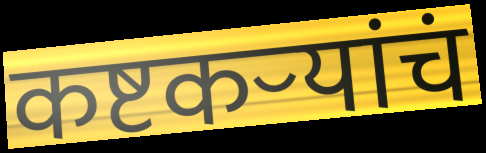
कष्टकऱ्यांचं